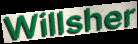
Willsher